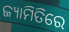
ଜ୍ୟାମିତିରେ